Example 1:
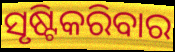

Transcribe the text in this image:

ସୃଷ୍ଟିକରିବାର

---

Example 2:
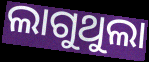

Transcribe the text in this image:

ଲାଗୁଥୁଲା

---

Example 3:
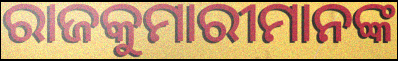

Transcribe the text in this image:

ରାଜକୁମାରୀମାନଙ୍କ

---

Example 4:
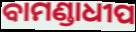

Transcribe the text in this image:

ବାମଣ୍ଡାଧୀପ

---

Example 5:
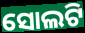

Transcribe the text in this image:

ସୋଲଟି